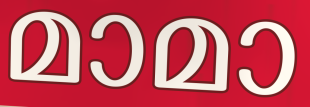
മാമാ